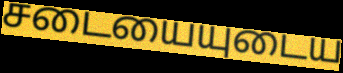
சடையையுடைய